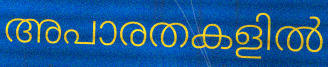
അപാരതകളിൽ